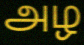
அழ